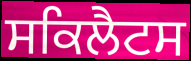
ਸਕਿਲੈਟਸ